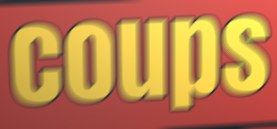
coups